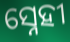
ସ୍ନେହୀ